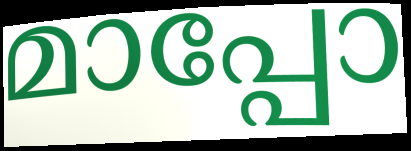
മാപ്പോ